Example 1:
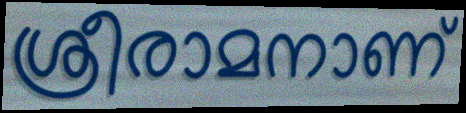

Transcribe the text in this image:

ശ്രീരാമനാണ്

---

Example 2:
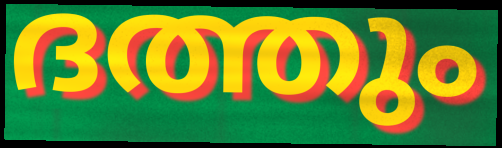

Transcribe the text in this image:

ദത്തും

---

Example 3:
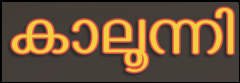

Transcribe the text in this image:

കാലൂന്നി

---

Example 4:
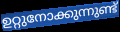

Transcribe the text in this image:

ഉറ്റുനോക്കുന്നുണ്ട്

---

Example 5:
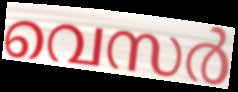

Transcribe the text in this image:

വെസർ